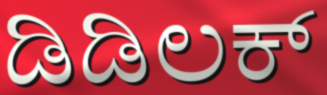
ಡಿಡಿಲಕ್